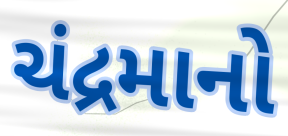
ચંદ્રમાનો